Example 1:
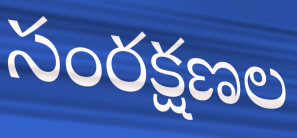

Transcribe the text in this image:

సంరక్షణల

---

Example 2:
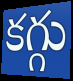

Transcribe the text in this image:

కగ్గు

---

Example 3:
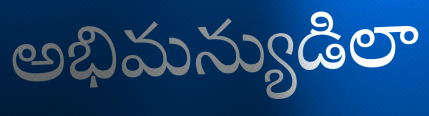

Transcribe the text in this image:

అభిమన్యుడిలా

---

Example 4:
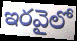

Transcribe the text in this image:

ఇరవైలో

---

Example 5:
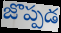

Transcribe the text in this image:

జొప్పడ